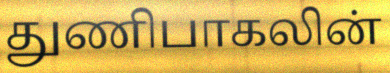
துணிபாகலின்